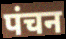
पंचन